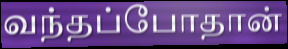
வந்தப்போதான்